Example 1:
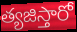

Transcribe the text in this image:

త్యజిస్తారో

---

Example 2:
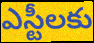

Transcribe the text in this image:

ఎస్టీలకు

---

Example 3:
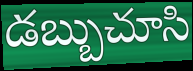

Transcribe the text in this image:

డబ్బుచూసి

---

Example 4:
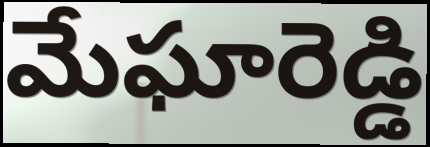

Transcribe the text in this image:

మేఘారెడ్డి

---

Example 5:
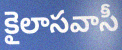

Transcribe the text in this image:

కైలాసవాసీ